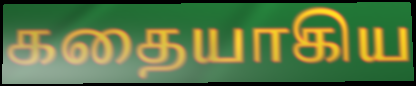
கதையாகிய